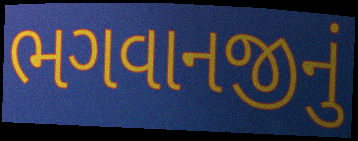
ભગવાનજીનું